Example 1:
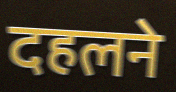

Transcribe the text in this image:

दहलने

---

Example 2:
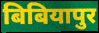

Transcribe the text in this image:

बिबियापुर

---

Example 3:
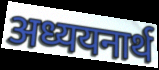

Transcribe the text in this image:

अध्ययनार्थ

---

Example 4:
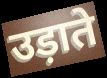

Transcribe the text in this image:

उड़ाते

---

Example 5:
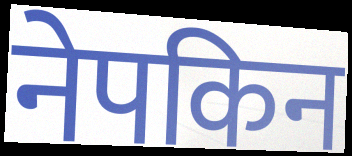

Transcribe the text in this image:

नेपकिन